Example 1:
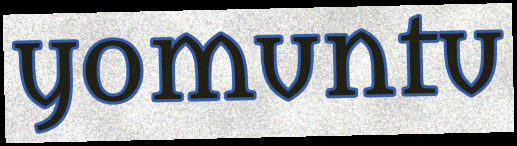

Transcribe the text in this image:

yomuntu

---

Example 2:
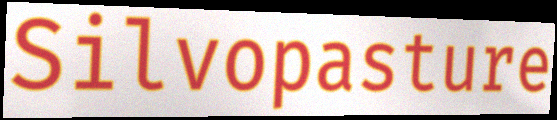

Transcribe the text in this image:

Silvopasture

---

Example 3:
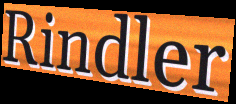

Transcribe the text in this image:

Rindler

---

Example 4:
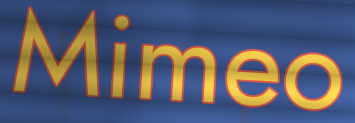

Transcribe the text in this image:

Mimeo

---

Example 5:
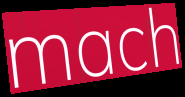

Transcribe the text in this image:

mach